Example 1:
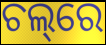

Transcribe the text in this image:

ଚଲ୍‌ରେ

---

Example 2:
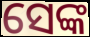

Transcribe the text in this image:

ସେଙ୍କ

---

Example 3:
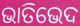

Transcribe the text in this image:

ଭାତିଭେଦ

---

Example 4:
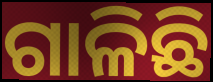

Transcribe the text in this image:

ଗାଳିଛି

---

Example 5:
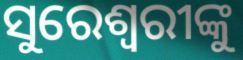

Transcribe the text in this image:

ସୁରେଶ୍ୱରୀଙ୍କୁ